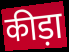
कीड़ा